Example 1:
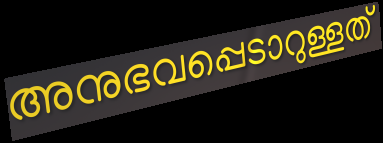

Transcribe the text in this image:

അനുഭവപ്പെടാറുള്ളത്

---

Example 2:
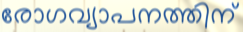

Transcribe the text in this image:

രോഗവ്യാപനത്തിന്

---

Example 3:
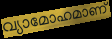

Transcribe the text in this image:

വ്യാമോഹമാണ്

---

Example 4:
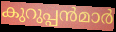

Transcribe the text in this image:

കുറുപ്പൻമാർ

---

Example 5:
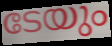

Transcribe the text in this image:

ടേയും